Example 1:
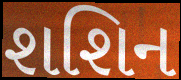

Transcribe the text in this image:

શશિન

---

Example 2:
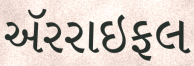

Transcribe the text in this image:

ઍરરાઇફલ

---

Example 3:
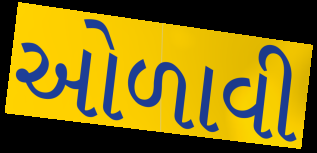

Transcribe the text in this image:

ઓળાવી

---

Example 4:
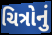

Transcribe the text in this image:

ચિત્રોનું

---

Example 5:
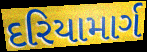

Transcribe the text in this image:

દરિયામાર્ગ